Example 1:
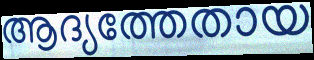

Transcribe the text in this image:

ആദ്യത്തേതായ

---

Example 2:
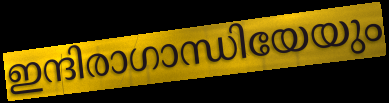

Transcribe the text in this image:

ഇന്ദിരാഗാന്ധിയേയും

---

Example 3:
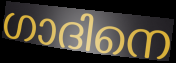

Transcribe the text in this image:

ഗാദിനെ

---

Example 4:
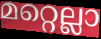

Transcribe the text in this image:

മറ്റെല്ലാ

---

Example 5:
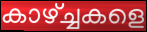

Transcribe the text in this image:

കാഴ്ച്ചകളെ